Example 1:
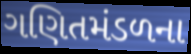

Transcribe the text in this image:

ગણિતમંડળના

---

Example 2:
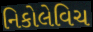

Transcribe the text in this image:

નિકોલેવિચ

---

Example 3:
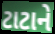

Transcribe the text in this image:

ટાટાને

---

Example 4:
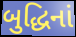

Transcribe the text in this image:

બુદ્ધિનાં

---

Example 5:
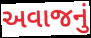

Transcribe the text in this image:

અવાજનું